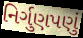
નિર્ગુણપણું